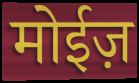
मोईज़